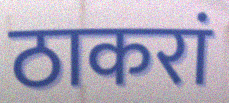
ठाकरां